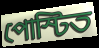
পোস্টিত